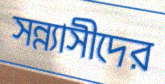
সন্ন্যাসীদের